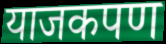
याजकपण